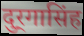
दुर्गासिंह